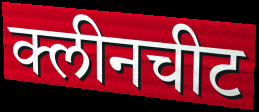
क्लीनचीट